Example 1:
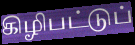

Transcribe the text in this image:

கிழிபட்டுப்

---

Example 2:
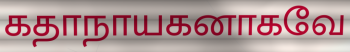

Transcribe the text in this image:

கதாநாயகனாகவே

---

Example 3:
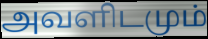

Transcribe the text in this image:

அவளிடமும்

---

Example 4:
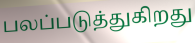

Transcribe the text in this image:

பலப்படுத்துகிறது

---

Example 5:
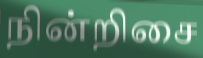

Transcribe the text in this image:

நின்றிசை